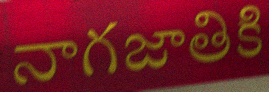
నాగజాతికి